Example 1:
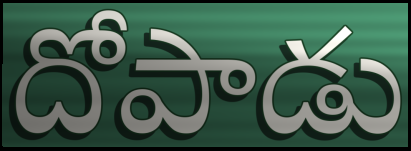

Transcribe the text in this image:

దోపాడు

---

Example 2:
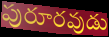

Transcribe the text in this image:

పురూరవుడు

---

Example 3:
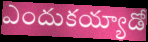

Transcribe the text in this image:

ఎందుకయ్యాడో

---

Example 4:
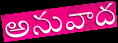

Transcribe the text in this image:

అనువాద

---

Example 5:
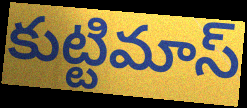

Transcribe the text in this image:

కుట్టిమాస్